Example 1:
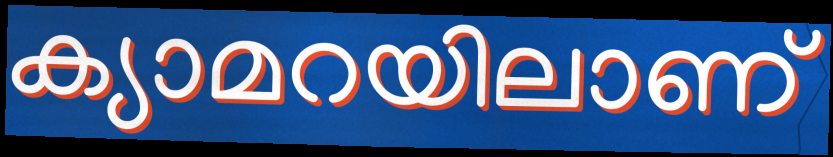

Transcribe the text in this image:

ക്യാമറയിലാണ്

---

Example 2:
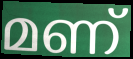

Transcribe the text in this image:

മണ്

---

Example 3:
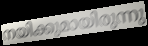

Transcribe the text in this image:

നയിക്കുമായിരുന്നു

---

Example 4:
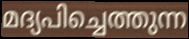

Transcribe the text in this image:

മദ്യപിച്ചെത്തുന്ന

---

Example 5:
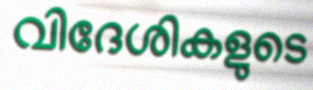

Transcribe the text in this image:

വിദേശികളുടെ